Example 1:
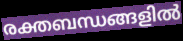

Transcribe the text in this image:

രക്തബന്ധങ്ങളിൽ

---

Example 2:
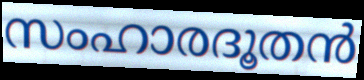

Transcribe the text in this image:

സംഹാരദൂതൻ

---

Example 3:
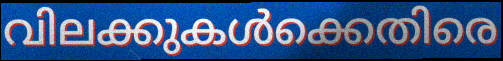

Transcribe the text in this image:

വിലക്കുകൾക്കെതിരെ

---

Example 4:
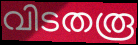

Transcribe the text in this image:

വിടതരൂ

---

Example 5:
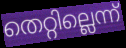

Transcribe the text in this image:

തെറ്റില്ലെന്ന്